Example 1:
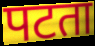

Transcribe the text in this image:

पटता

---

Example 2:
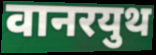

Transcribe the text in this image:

वानरयुथ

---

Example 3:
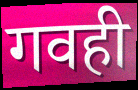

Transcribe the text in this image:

गवही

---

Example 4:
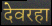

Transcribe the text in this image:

देवरहा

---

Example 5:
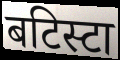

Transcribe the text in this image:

बटिस्टा